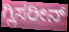
ಗ್ಲಿಸರೀನ್